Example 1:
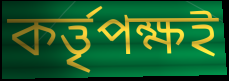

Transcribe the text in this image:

কৰ্ত্তৃপক্ষই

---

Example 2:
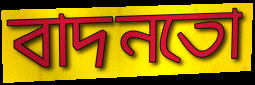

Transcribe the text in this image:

বাদনতো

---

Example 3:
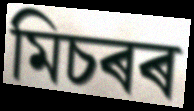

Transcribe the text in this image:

মিচৰৰ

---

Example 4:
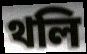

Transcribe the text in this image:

থলি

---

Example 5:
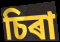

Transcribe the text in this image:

চিৰা